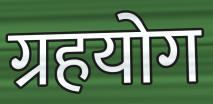
ग्रहयोग